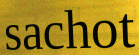
sachot